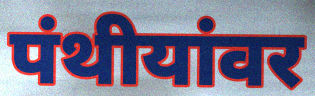
पंथीयांवर